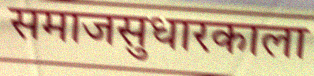
समाजसुधारकाला